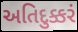
અતિદુક્કરં